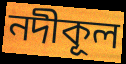
নদীকূল